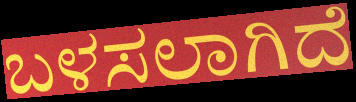
ಬಳಸಲಾಗಿದೆ